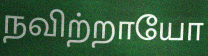
நவிற்றாயோ